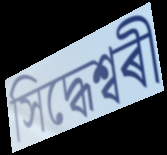
সিদ্ধেশ্বৰী